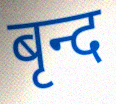
बृन्द